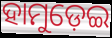
ହାମୁଡ଼େଇ